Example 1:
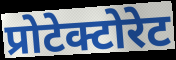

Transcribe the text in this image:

प्रोटेक्टोरेट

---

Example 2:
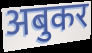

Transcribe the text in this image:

अबुकर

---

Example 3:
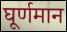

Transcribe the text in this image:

घूर्णमान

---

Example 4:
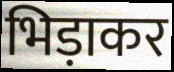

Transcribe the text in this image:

भिड़ाकर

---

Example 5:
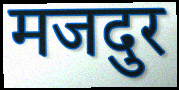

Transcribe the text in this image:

मजदुर